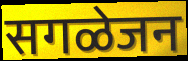
सगळेजन